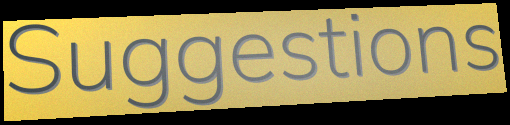
Suggestions